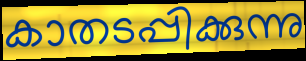
കാതടപ്പിക്കുന്നു